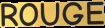
ROUGE